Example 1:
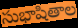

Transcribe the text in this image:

సుభాషితాల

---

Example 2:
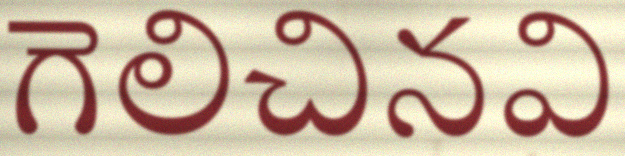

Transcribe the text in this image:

గెలిచినవి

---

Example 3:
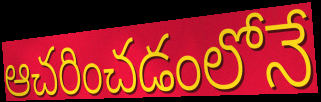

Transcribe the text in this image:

ఆచరించడంలోనే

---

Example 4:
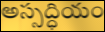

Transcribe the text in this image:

అస్సద్ధియం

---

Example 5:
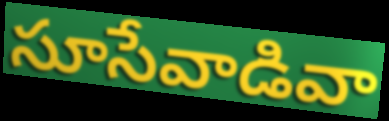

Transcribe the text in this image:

సూసేవాడివా